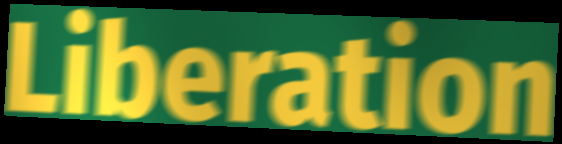
Liberation